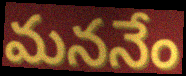
మననేం